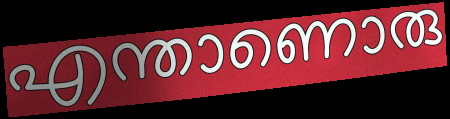
എന്താണൊരു